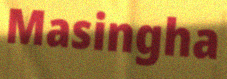
Masingha